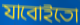
যাবোইতো